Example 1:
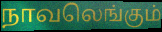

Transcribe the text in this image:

நாவலெங்கும்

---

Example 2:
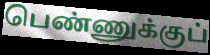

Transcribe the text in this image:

பெண்ணுக்குப்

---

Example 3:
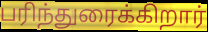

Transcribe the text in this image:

பரிந்துரைக்கிறார்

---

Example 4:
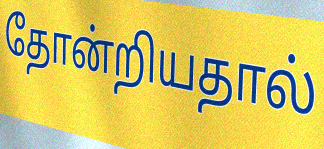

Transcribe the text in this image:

தோன்றியதால்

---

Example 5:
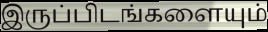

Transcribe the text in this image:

இருப்பிடங்களையும்